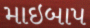
માઇબાપ